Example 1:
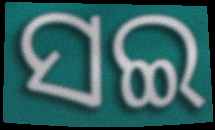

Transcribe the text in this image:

ସଇ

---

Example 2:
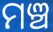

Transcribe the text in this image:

ମଞ୍ଚ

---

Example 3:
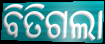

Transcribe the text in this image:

ବିତିଗଲା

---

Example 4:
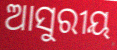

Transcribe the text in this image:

ଆସୁରୀୟ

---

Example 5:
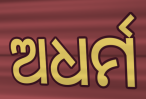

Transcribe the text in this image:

ଅଧର୍ମ